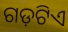
ଗଡ଼ଟିଏ